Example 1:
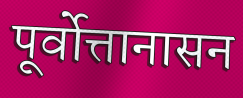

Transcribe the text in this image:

पूर्वोत्तानासन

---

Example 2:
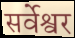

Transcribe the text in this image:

सर्वेश्वर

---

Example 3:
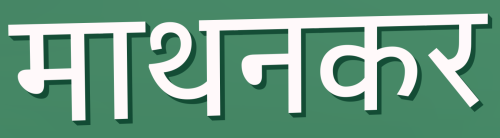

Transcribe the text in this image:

माथनकर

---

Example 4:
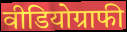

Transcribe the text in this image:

वीडियोग्राफी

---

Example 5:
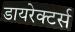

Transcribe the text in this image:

डायरेक्टर्स